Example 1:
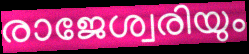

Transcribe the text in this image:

രാജേശ്വരിയും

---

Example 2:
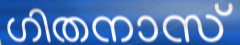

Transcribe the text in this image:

ഗിതനാസ്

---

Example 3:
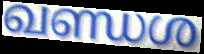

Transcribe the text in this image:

ഖണ്ഡശ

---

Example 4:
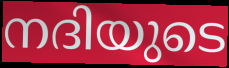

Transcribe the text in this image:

നദിയുടെ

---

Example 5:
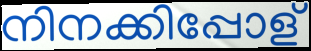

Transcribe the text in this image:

നിനക്കിപ്പോള്